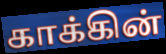
காக்கின்